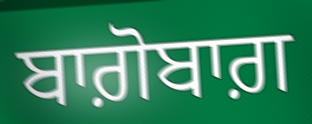
ਬਾਗ਼ੋਬਾਗ਼